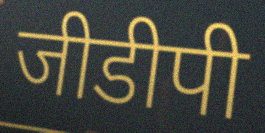
जीडीपी